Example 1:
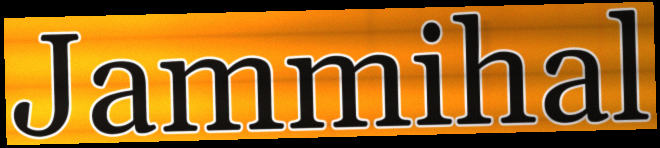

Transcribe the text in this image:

Jammihal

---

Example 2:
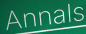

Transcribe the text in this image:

Annals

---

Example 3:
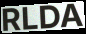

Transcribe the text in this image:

RLDA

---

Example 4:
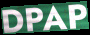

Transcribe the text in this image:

DPAP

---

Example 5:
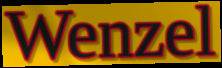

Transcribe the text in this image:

Wenzel